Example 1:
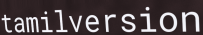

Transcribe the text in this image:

tamilversion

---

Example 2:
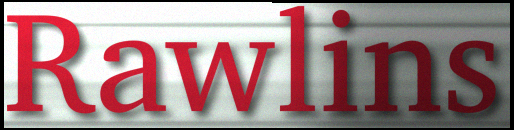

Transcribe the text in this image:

Rawlins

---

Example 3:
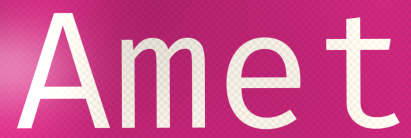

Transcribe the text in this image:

Amet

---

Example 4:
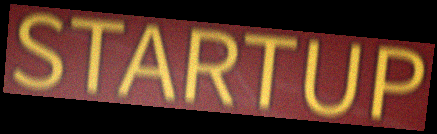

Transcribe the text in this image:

STARTUP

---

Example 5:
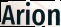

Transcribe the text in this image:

Arion